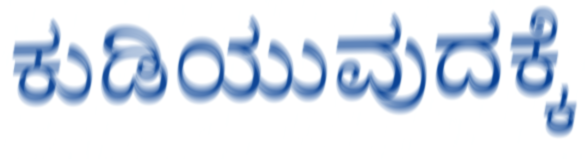
ಕುಡಿಯುವುದಕ್ಕೆ